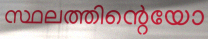
സ്ഥലത്തിന്റെയോ